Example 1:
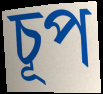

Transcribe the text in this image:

চূপ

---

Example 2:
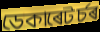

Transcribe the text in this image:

ডেকাৰেটৰ্চৰ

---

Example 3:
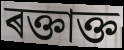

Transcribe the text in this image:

ৰক্তাক্ত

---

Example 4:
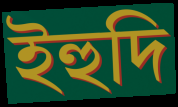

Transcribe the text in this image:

ইহুদি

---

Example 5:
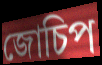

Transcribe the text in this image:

জোচিপ